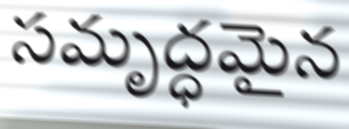
సమృద్ధమైన